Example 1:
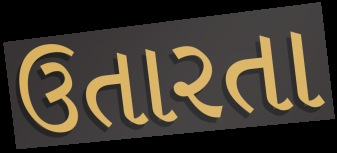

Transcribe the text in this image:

ઉતારતા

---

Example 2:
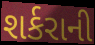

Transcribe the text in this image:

શર્કરાની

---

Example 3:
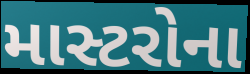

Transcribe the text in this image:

માસ્ટરોના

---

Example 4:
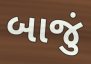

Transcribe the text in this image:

બાજું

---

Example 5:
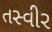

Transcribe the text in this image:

તસ્વીર